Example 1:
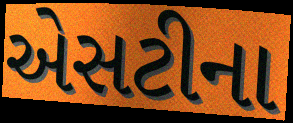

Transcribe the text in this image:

એસટીના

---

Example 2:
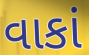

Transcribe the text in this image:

વાકાં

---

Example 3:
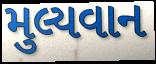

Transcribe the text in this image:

મુલ્યવાન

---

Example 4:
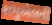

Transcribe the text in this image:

શમુએલની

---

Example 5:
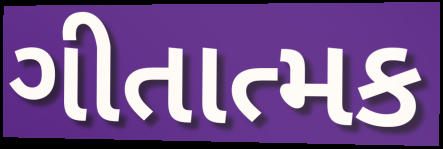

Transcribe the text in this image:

ગીતાત્મક